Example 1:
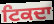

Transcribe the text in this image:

ਟਿਕਦਾ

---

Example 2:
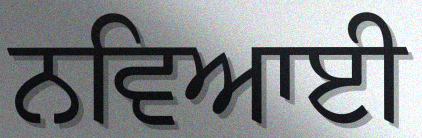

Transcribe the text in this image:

ਨਵਿਆਈ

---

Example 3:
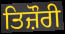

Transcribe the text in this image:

ਤਿਜ਼ੌਰੀ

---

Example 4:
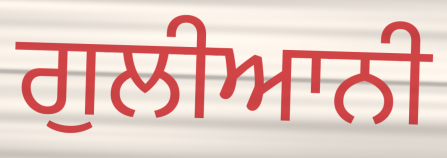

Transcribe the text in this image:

ਗੁਲੀਆਨੀ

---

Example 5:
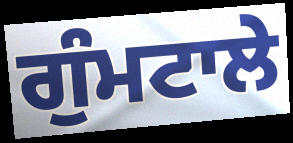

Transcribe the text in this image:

ਗੁੰਮਟਾਲੇ